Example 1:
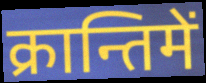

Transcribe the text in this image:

क्रान्तिमें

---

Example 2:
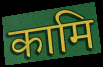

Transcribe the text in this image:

कामि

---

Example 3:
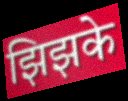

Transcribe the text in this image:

झिझके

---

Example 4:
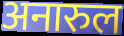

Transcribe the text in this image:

अनारुल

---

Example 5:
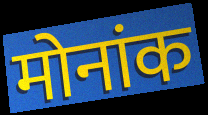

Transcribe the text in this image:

मोनांक